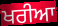
ਖਰੀਆ